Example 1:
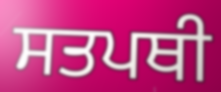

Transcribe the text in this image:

ਸਤਪਥੀ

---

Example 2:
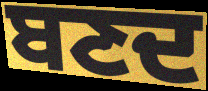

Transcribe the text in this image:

ਬਣਦ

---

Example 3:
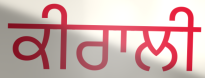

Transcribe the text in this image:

ਕੀਰਾਲੀ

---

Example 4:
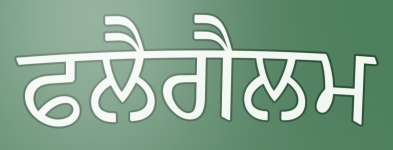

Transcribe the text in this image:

ਫਲੈਗੈਲਮ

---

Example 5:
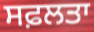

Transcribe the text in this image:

ਸਫ਼ਲਤਾ